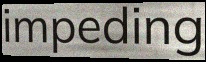
impeding